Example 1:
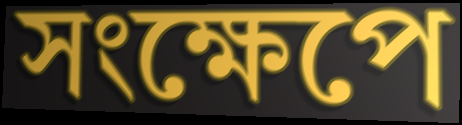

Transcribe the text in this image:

সংক্ষেপে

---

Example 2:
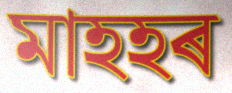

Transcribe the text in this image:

মাহহৰ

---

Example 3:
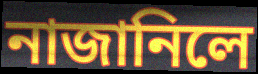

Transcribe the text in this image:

নাজানিলে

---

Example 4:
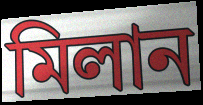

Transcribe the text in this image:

মিলান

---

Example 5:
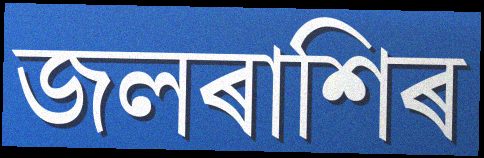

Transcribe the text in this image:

জলৰাশিৰ